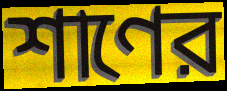
শাণের